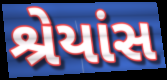
શ્રેયાંસ